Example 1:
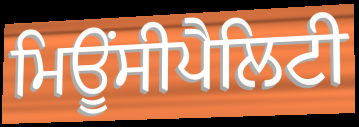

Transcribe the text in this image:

ਮਿਊਂਸੀਪੈਲਿਟੀ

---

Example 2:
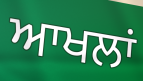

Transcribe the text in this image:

ਆਖਲਾਂ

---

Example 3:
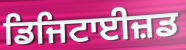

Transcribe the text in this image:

ਡਿਜਿਟਾਈਜ਼ਡ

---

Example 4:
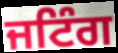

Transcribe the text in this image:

ਜਟਿੰਗ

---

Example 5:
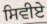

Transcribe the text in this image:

ਸਿਵੀਏ